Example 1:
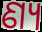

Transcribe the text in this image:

ଣ୍ଯ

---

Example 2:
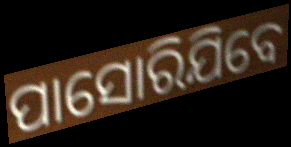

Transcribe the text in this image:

ପାସୋରିଯିବେ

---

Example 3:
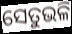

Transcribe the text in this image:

ସେତୁଭଳି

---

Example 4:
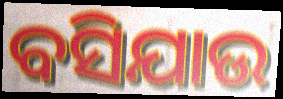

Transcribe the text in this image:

ବସିଯାଉ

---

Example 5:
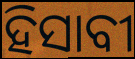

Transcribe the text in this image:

ହିସାବୀ